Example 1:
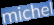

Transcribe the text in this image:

michel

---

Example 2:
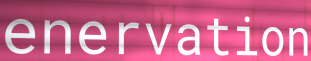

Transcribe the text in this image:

enervation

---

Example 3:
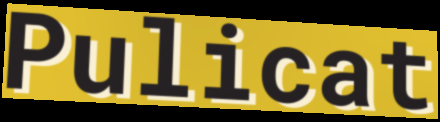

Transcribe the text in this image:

Pulicat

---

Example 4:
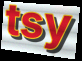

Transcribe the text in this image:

tsy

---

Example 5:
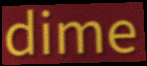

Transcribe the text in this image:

dime